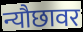
न्यौछावर